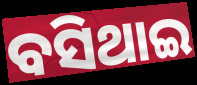
ବସିଥାଇ